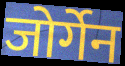
जोर्गेन